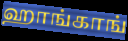
ஹாங்காங்